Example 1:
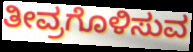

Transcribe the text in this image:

ತೀವ್ರಗೊಳಿಸುವ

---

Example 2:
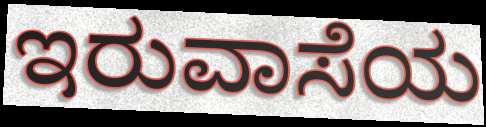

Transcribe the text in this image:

ಇರುವಾಸೆಯ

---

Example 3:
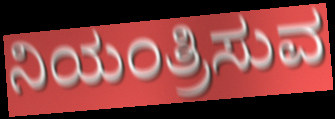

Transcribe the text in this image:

ನಿಯಂತ್ರಿಸುವ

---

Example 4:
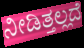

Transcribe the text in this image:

ನೀಡಿತ್ತಲ್ಲದೆ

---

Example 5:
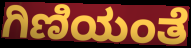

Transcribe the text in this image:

ಗಿಣಿಯಂತೆ